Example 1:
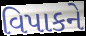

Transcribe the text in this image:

વિપાકને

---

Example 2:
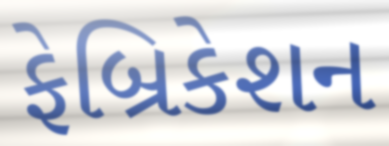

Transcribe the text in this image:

ફેબ્રિકેશન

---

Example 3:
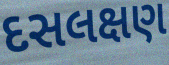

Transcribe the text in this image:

દસલક્ષણ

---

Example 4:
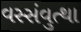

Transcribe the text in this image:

વસ્સંવુત્થા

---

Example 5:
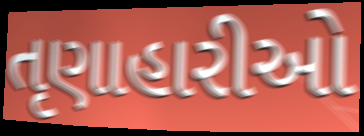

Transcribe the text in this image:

તૃણાહારીઓ